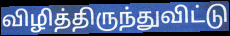
விழித்திருந்துவிட்டு